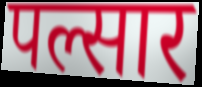
पल्सार